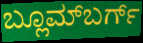
ಬ್ಲೂಮ್‌ಬರ್ಗ್